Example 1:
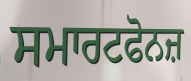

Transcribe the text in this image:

ਸਮਾਰਟਫੋਨਜ਼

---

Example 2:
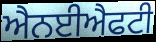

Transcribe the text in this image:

ਐਨਈਐਫਟੀ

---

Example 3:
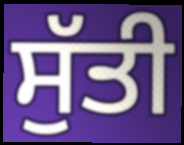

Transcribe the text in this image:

ਸੁੱਤੀ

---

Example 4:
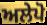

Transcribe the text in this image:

ਅਲੇਪੋ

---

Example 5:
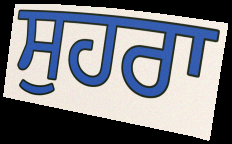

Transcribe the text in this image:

ਸੁਹਰਾ